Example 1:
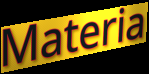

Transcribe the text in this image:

Materia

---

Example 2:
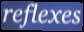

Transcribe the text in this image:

reflexes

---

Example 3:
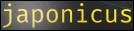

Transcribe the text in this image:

japonicus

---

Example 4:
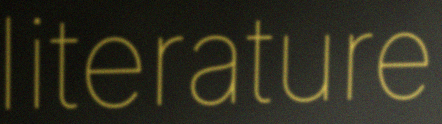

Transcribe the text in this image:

Iiterature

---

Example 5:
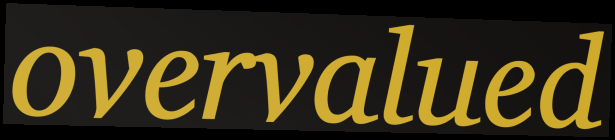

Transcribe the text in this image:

overvalued